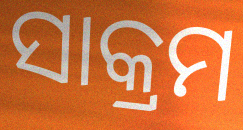
ସାକ୍ରମ